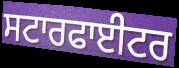
ਸਟਾਰਫਾਈਟਰ